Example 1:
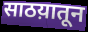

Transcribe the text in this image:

साठय़ातून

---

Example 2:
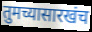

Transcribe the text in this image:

तुमच्यासारखंच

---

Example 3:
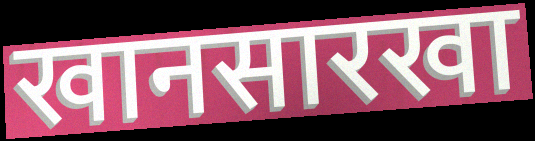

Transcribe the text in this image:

खानसारखा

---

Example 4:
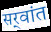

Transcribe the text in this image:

सर्वांत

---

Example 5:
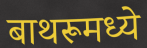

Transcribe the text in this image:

बाथरूमध्ये